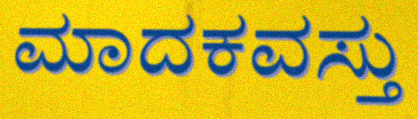
ಮಾದಕವಸ್ತು